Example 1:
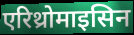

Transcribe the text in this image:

एरिथ्रोमाइसिन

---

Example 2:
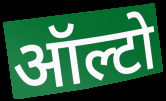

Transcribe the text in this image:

ऑल्टो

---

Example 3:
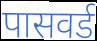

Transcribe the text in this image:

पासवर्ड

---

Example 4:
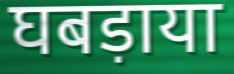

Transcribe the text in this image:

घबड़ाया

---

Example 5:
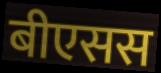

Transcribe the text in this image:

बीएसस